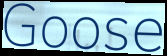
Goose